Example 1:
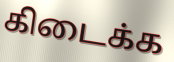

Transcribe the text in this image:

கிடைக்க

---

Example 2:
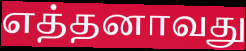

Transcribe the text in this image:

எத்தனாவது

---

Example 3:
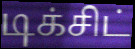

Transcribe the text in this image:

டிக்சிட்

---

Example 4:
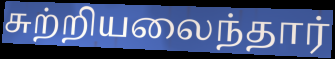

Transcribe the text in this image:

சுற்றியலைந்தார்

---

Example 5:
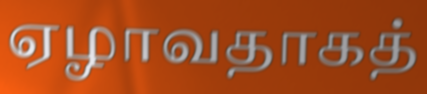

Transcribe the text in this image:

ஏழாவதாகத்